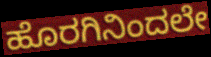
ಹೊರಗಿನಿಂದಲೇ